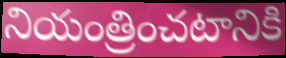
నియంత్రించటానికి